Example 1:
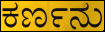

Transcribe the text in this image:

ಕರ್ಣನು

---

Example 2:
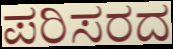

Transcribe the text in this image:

ಪರಿಸರದ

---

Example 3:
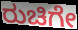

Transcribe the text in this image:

ರುಚಿಗೇ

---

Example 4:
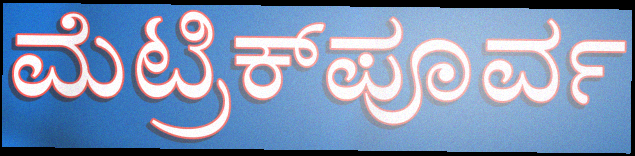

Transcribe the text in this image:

ಮೆಟ್ರಿಕ್‌ಪೂರ್ವ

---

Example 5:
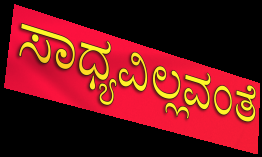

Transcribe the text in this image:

ಸಾಧ್ಯವಿಲ್ಲವಂತೆ